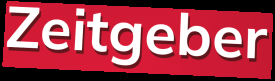
Zeitgeber